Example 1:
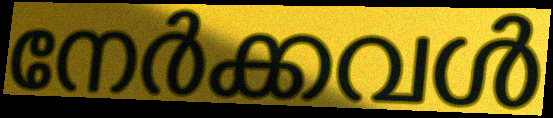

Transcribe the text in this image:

നേർക്കവൾ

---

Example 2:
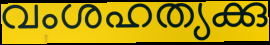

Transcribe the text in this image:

വംശഹത്യക്കു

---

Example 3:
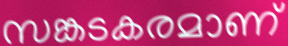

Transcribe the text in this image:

സങ്കടകരമാണ്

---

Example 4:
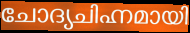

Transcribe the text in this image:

ചോദ്യചിഹ്നമായി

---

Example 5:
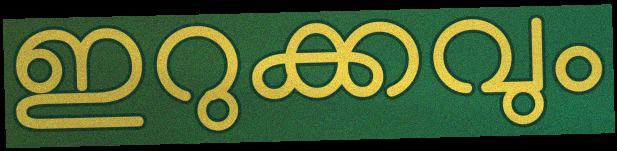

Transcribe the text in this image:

ഇറുക്കവും